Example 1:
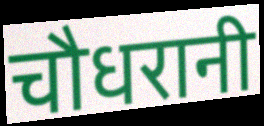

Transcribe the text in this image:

चौधरानी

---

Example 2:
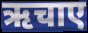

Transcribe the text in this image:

ऋचाए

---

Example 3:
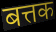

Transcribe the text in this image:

बत्तक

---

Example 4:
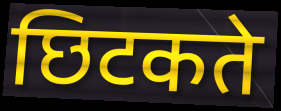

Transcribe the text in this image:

छिटकते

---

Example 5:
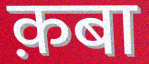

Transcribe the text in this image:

क़बा